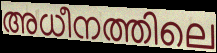
അധീനത്തിലെ